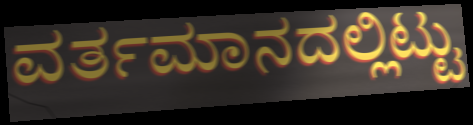
ವರ್ತಮಾನದಲ್ಲಿಟ್ಟು